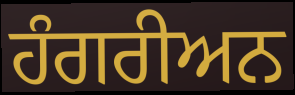
ਹੰਗਰੀਅਨ